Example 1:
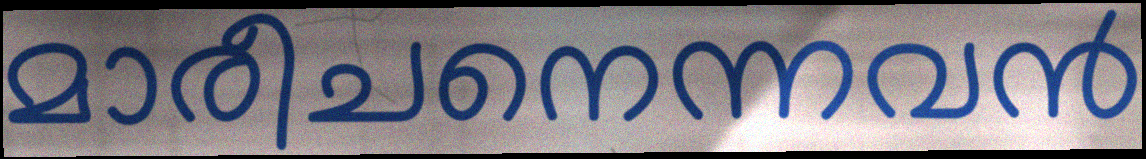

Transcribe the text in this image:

മാരീചനെന്നവൻ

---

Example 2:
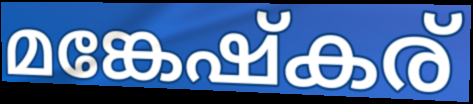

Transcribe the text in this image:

മങ്കേഷ്കര്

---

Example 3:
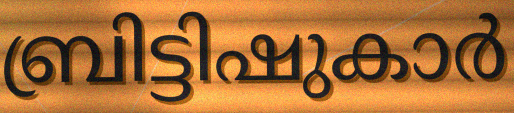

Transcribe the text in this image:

ബ്രിട്ടിഷുകാർ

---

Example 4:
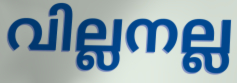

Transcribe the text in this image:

വില്ലനല്ല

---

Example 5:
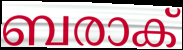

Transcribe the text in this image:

ബരാക്